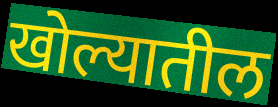
खोल्यातील